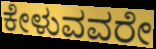
ಕೇಳುವವರೇ